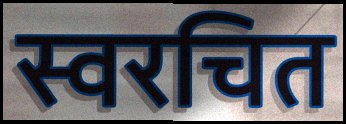
स्वरचित